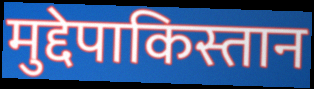
मुद्देपाकिस्तान